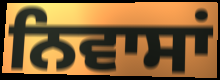
ਨਿਵਾਸਾਂ